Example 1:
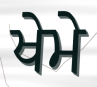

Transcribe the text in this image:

ਖੇਮੇ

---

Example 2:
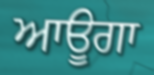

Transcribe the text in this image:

ਆਊਗਾ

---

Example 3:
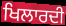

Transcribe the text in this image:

ਖਿਲਾਰਦੀ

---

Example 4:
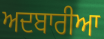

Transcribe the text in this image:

ਅਦਬਾਰੀਆ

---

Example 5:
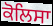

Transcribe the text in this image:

ਕੋਲਿਸਾ